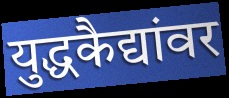
युद्धकैद्यांवर